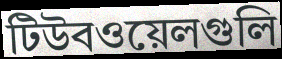
টিউবওয়েলগুলি